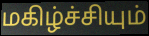
மகிழ்ச்சியும்